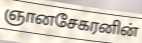
ஞானசேகரனின்